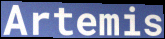
Artemis